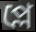
প্লে